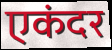
एकंदर